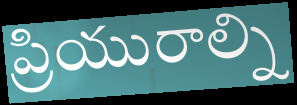
ప్రియురాల్ని